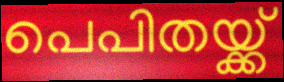
പെപിതയ്ക്ക്